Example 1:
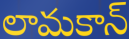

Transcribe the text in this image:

లామకాన్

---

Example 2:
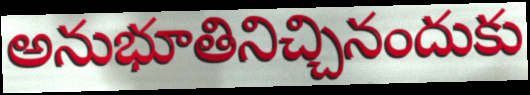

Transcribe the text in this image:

అనుభూతినిచ్చినందుకు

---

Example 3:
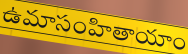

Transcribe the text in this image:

ఉమాసంహితాయాం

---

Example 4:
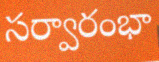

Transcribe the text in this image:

సర్వారంభా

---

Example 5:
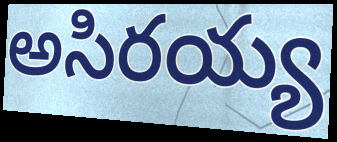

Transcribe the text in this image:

అసిరయ్య